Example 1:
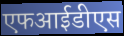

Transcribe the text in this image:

एफआईडीएस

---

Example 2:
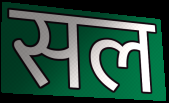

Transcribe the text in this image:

सल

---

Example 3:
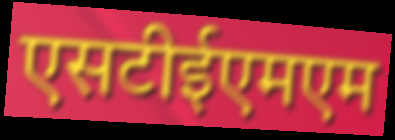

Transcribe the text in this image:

एसटीईएमएम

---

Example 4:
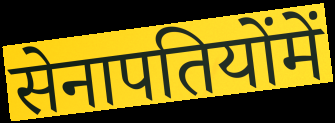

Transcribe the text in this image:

सेनापतियोंमें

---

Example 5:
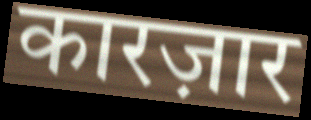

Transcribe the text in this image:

कारज़ार